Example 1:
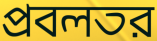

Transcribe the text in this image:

প্রবলতর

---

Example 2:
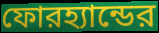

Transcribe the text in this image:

ফোরহ্যান্ডের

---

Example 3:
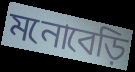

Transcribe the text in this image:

মনোবেড়ি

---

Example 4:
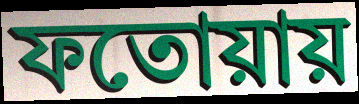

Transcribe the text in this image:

ফতোয়ায়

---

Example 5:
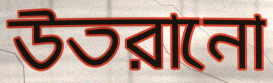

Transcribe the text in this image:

উতরানো